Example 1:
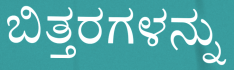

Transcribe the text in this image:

ಬಿತ್ತರಗಳನ್ನು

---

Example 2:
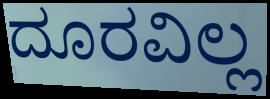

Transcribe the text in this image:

ದೂರವಿಲ್ಲ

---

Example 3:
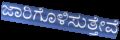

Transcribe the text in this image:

ಜಾರಿಗೊಳಿಸುತ್ತೇವೆ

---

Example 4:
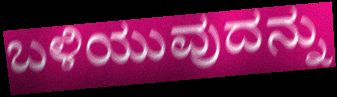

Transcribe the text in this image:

ಬಳಿಯುವುದನ್ನು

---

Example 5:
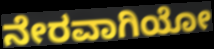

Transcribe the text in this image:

ನೇರವಾಗಿಯೋ